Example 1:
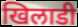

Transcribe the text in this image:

खिलाडी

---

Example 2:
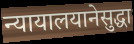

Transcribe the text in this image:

न्यायालयानेसुद्धा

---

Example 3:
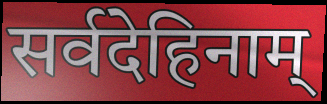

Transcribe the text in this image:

सर्वदेहिनाम्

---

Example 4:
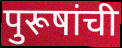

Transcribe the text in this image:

पुरूषांची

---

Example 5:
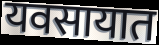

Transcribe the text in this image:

यवसायात